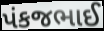
પંકજભાઈ